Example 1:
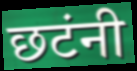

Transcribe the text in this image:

छटंनी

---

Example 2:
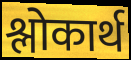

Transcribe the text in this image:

श्लोकार्थ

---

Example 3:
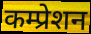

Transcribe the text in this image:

कम्प्रेशन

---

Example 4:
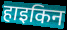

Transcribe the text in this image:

हाइकिन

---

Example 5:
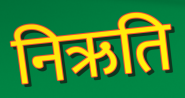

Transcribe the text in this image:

निऋति